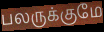
பலருக்குமே